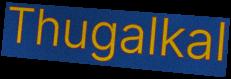
Thugalkal